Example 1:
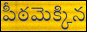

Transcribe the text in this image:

పీఠమెక్కిన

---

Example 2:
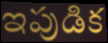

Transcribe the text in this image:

ఇపుడిక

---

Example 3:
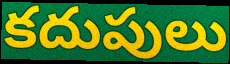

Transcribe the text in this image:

కదుపులు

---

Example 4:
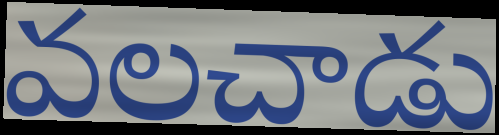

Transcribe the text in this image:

వలచాడు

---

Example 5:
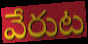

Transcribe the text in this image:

వేరుట